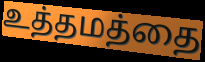
உத்தமத்தை